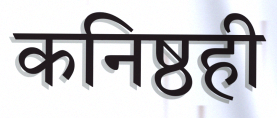
कनिष्ठही